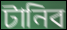
টানিব